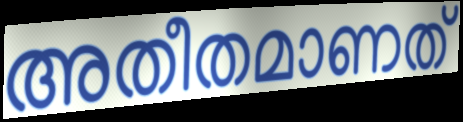
അതീതമാണത്